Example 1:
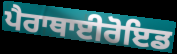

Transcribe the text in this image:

ਪੈਰਾਥਾਈਰੋਇਡ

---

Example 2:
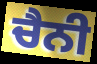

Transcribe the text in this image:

ਚੈਨੀ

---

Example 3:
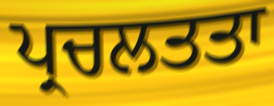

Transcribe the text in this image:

ਪ੍ਰਚਲਤਤਾ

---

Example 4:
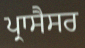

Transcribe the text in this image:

ਪ੍ਰਾਸੈਸਰ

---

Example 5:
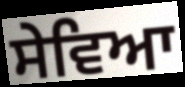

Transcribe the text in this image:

ਸੇਵਿਆ